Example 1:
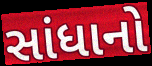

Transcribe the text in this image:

સાંધાનો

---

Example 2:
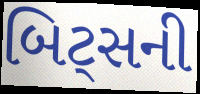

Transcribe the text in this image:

બિટ્સની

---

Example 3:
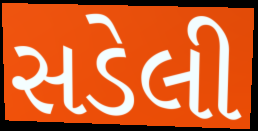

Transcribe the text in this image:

સડેલી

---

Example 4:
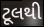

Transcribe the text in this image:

ટૂલથી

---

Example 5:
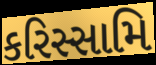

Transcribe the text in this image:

કરિસ્સામિ